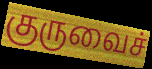
குருவைச்